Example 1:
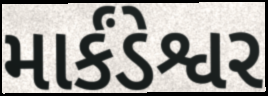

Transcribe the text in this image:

માર્કંડેશ્વર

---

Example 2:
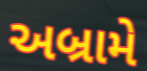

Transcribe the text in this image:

અબ્રામે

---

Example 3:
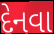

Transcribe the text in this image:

દેનવા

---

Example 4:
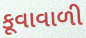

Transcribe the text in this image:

કૂવાવાળી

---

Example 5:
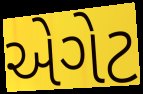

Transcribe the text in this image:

એગેટ